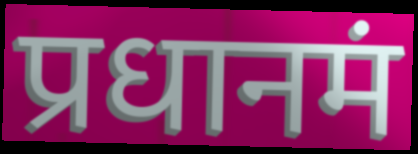
प्रधानमं